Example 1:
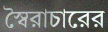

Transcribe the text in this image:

স্বৈরাচারের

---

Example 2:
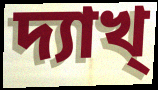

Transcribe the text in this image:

দ্যাখ্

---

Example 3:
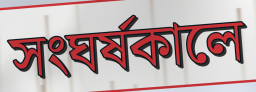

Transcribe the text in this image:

সংঘর্ষকালে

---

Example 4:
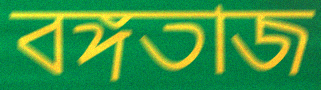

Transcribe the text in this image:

বঙ্গতাজ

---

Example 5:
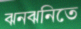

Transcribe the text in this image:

ঝনঝনিতে